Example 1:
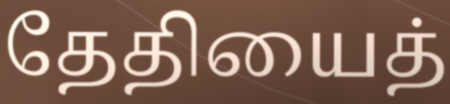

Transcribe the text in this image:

தேதியைத்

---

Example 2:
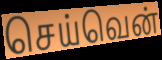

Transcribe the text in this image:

செய்வென்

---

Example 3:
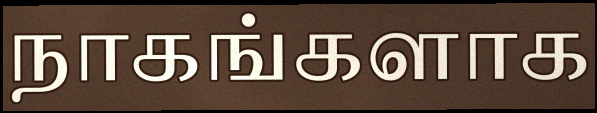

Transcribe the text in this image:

நாகங்களாக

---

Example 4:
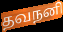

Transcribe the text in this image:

தவநனி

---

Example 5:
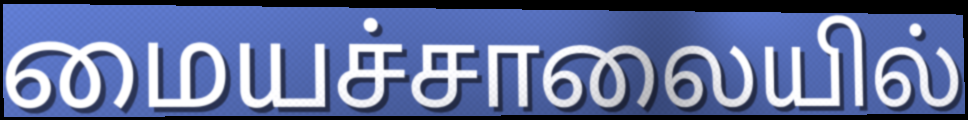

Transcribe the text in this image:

மையச்சாலையில்